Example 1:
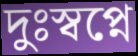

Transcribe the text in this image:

দুঃস্বপ্নে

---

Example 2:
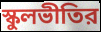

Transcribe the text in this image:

স্কুলভীতির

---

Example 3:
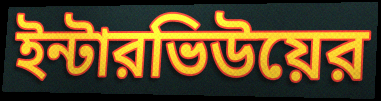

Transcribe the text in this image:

ইন্টারভিউয়ের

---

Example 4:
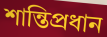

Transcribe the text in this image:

শান্তিপ্রধান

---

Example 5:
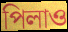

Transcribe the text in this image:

পিলাও